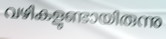
വഴികളുണ്ടായിരുന്നു